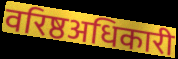
वरिष्ठअधिकारी